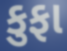
કુફા